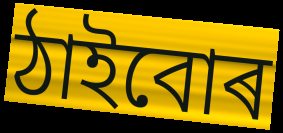
ঠাইবোৰ